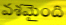
వశమైంది